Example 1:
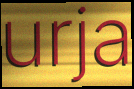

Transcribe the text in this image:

urja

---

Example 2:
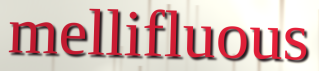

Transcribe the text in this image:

mellifluous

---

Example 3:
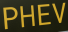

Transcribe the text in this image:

PHEV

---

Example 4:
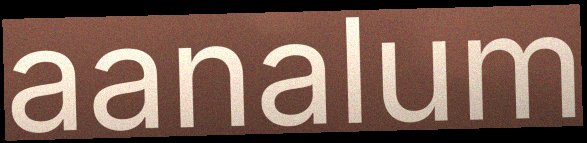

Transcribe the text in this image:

aanalum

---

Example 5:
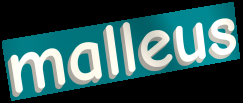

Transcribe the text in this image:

malleus